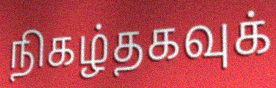
நிகழ்தகவுக்